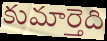
కుమార్తెది